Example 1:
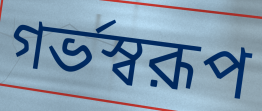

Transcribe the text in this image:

গর্ভস্বরূপ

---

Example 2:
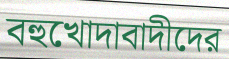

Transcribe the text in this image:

বহুখোদাবাদীদের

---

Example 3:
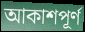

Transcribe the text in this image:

আকাশপূর্ণ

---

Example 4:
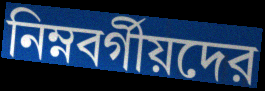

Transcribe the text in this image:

নিম্নবর্গীয়দের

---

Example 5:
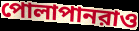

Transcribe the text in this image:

পোলাপানরাও